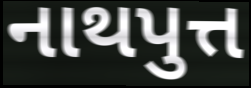
નાથપુત્ત